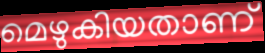
മെഴുകിയതാണ്